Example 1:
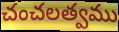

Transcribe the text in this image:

చంచలత్వము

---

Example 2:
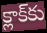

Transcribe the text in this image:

క్లాక్‌కు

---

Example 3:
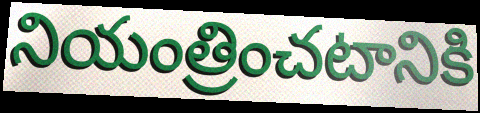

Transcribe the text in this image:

నియంత్రించటానికి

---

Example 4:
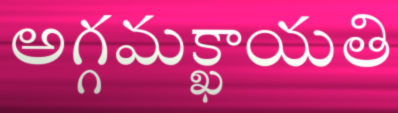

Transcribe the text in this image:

అగ్గమక్ఖాయతి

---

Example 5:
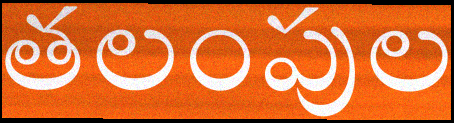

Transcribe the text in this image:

తలంపుల